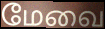
மேவை